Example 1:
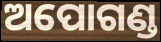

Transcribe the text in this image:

ଅପୋଗଣ୍ଡ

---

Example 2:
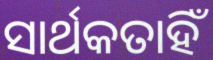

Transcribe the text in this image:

ସାର୍ଥକତାହିଁ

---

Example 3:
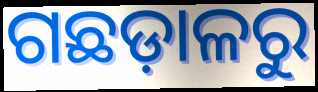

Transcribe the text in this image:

ଗଛଡ଼ାଳରୁ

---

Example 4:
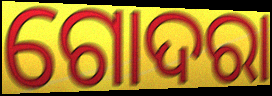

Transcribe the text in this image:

ଗୋଦରା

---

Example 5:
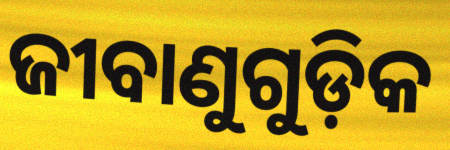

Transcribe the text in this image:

ଜୀବାଣୁଗୁଡ଼ିକ